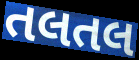
તલતલ